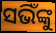
ସଭିଁଙ୍କୁ